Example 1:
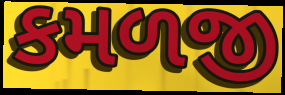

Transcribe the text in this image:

કમળજી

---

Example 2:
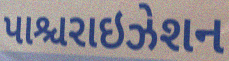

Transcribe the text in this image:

પાશ્ચરાઇઝેશન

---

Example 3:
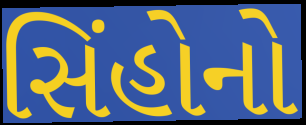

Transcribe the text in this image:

સિંહોનો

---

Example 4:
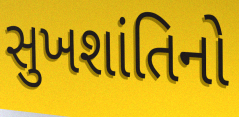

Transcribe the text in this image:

સુખશાંતિનો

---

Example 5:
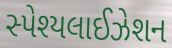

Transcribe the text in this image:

સ્પેશ્યલાઈઝેશન